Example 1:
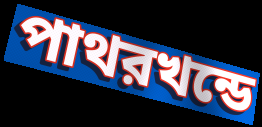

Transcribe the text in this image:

পাথরখন্ডে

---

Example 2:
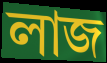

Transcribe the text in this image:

লাজ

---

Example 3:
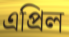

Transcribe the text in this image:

এপ্রিল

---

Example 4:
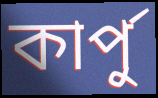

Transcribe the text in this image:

কার্পু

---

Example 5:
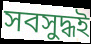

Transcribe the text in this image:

সবসুদ্ধই